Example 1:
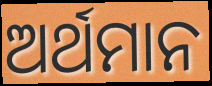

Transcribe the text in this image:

ଅର୍ଥମାନ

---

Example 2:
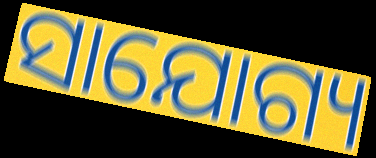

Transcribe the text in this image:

ସାଯୋଗ୍ୟ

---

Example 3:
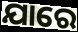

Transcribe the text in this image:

ଯାରେ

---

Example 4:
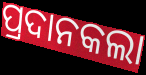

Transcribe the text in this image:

ପ୍ରଦାନକଲା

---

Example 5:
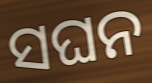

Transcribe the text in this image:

ସଘନ